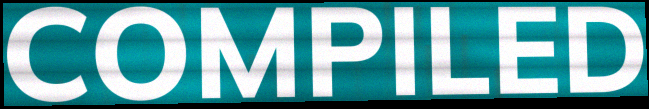
COMPILED